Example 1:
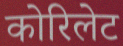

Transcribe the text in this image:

कोरिलेट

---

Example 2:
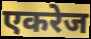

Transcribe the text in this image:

एकरेज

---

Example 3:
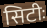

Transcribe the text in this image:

सिटीः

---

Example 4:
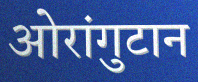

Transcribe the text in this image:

ओरांगुटान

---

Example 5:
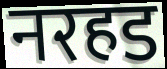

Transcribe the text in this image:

नरहड